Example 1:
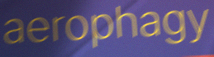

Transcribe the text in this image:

aerophagy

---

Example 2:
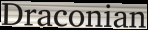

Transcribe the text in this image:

Draconian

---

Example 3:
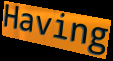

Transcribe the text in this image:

Having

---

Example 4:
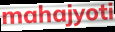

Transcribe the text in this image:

mahajyoti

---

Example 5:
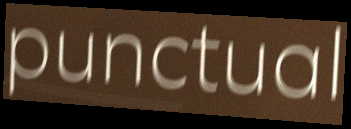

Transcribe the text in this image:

punctual